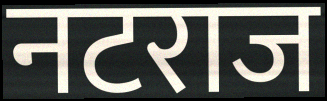
नटराज